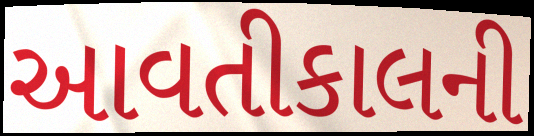
આવતીકાલની